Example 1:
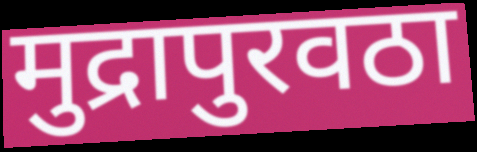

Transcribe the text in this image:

मुद्रापुरवठा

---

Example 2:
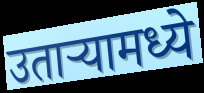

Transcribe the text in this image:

उतार्‍यामध्ये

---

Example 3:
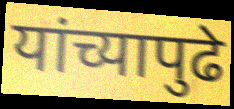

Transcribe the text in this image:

यांच्यापुढे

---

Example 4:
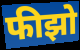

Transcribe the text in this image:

फीझो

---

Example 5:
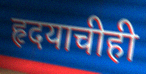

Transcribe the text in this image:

हृदयाचीही